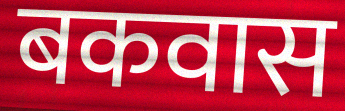
बकवास